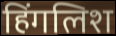
हिंगलिश